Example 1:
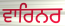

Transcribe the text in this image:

ਵਾਰਿਨਰ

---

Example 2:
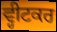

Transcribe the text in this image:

ਵ੍ਹੀਟਕਰ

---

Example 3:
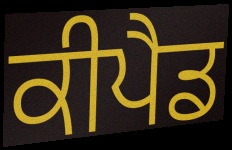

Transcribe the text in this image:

ਕੀਪੈਡ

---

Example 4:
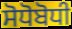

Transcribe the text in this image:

ਸੋਧੋਬੋਧੀ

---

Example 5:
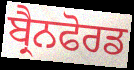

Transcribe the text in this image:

ਬ੍ਰੈਨਫੋਰਡ